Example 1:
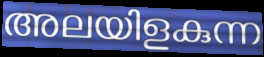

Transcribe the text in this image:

അലയിളകുന്ന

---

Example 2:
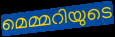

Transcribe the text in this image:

മെമ്മറിയുടെ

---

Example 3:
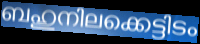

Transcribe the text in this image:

ബഹുനിലക്കെട്ടിടം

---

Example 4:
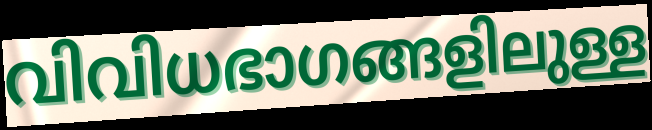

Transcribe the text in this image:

വിവിധഭാഗങ്ങളിലുള്ള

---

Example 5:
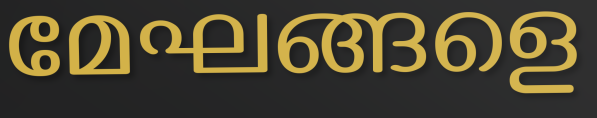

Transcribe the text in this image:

മേഘങ്ങളെ